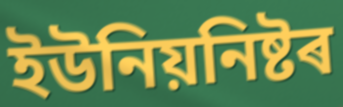
ইউনিয়নিষ্টৰ